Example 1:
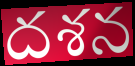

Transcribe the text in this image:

దశన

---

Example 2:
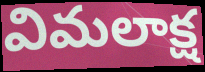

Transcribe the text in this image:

విమలాక్ష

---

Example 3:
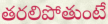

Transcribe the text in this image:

తరలిపోతుంటే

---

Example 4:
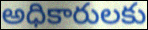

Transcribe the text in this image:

అధికారులకు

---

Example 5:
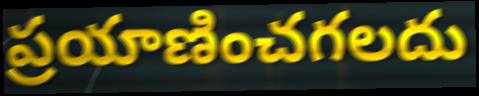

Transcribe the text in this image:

ప్రయాణించగలదు